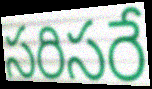
సరిసరే